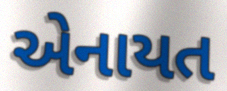
એનાયત